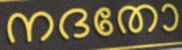
നദതോ